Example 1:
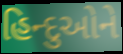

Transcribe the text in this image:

હિન્દુઓને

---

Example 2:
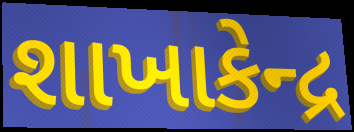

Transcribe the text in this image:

શાખાકેન્દ્ર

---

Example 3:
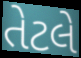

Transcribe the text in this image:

તેટલે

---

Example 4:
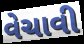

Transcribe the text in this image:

વેચાવી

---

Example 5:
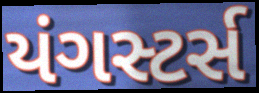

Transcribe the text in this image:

યંગસ્ટર્સ